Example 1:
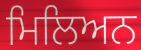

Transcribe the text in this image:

ਮਿਲਿਅਨ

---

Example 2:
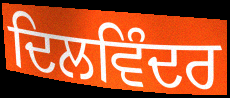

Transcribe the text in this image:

ਦਿਲਵਿੰਦਰ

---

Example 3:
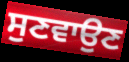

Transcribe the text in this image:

ਸੁਣਵਾਉਣ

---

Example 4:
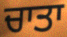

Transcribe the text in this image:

ਚਾਤਾ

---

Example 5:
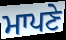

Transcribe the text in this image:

ਮਾਪਣੇ